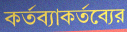
কর্তব্যাকর্তব্যের